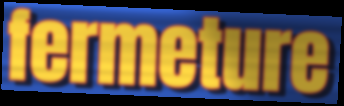
fermeture